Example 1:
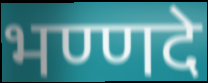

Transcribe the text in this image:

भण्णदे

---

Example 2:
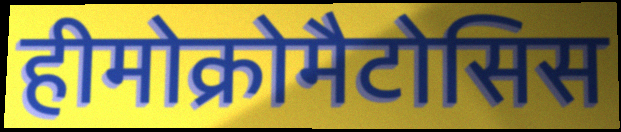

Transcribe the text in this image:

हीमोक्रोमैटोसिस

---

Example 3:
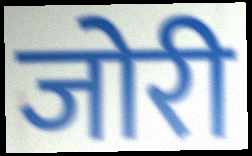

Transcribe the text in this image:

जोरी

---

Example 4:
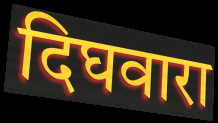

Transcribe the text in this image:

दिघवारा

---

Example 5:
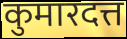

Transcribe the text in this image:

कुमारदत्त